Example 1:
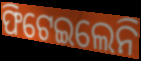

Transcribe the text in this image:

ଫିଟେଇଲେନି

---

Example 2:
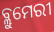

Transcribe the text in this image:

ବ୍ଲୁମେରୀ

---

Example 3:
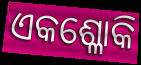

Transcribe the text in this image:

ଏକଶ୍ଳୋକି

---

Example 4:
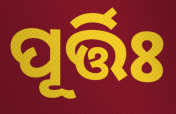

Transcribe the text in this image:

ପୂର୍ତ୍ତିଃ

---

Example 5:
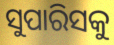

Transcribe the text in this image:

ସୁପାରିସକୁ